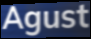
Agust